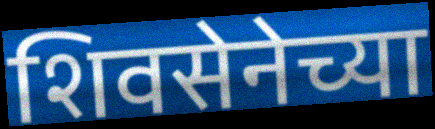
शिवसेनेच्या